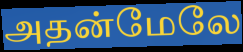
அதன்மேலே